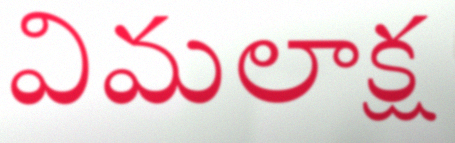
విమలాక్ష